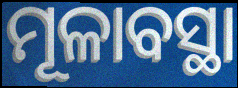
ମୂଳାବସ୍ଥା